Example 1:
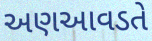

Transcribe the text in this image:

અણઆવડતે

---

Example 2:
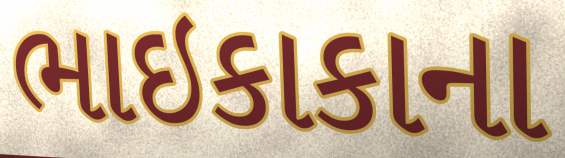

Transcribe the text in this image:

ભાઇકાકાના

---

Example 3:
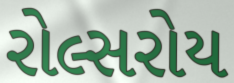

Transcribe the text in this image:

રોલ્સરોય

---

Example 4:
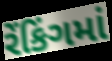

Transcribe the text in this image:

રેંકિંગમાં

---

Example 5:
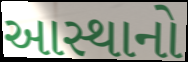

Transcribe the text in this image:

આસ્થાનો